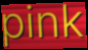
pink